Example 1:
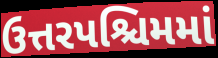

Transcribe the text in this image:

ઉત્તરપશ્ચિમમાં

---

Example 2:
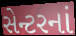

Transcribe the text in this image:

સેન્ટરનાં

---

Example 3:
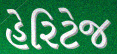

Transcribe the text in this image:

હેરિટેજ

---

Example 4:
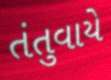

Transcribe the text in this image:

તંતુવાયે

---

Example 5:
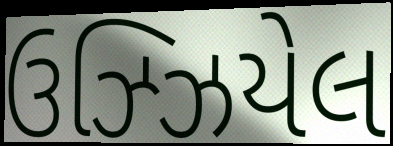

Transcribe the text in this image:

ઉઝ્ઝિયેલ